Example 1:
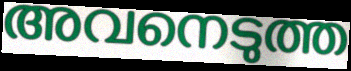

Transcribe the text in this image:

അവനെടുത്ത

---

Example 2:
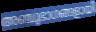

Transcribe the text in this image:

അഞ്ചുഭാഗങ്ങളായി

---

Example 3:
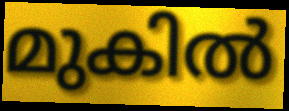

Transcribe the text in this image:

മുകിൽ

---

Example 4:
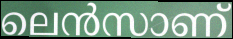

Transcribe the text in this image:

ലെൻസാണ്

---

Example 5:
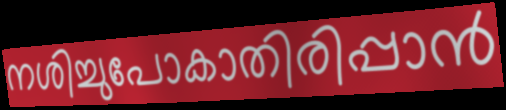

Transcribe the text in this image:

നശിച്ചുപോകാതിരിപ്പാൻ